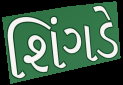
શિંગડે